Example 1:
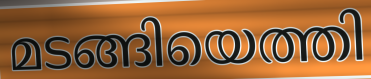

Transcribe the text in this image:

മടങ്ങിയെത്തി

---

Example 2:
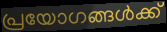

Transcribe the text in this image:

പ്രയോഗങ്ങൾക്ക്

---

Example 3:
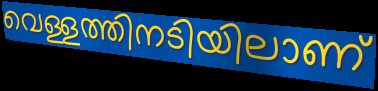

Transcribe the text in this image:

വെള്ളത്തിനടിയിലാണ്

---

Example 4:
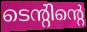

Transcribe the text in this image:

ടെന്റിന്റെ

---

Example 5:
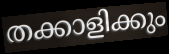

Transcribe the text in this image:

തക്കാളിക്കും